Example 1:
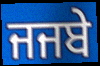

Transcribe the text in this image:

ਜਜਬੇ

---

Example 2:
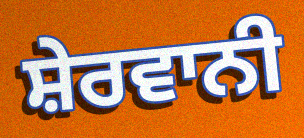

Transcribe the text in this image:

ਸ਼ੇਰਵਾਨੀ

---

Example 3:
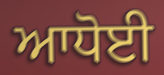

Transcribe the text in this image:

ਆਧੋਈ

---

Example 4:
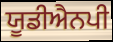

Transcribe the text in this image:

ਯੂਡੀਐਨਪੀ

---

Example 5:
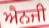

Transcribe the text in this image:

ਐਨਜੀ